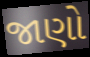
જાણો